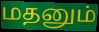
மதனும்